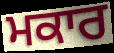
ਮਕਾਰ